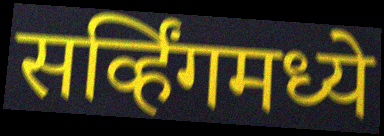
सर्व्हिंगमध्ये